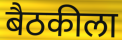
बैठकीला